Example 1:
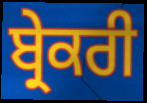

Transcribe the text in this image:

ਬ੍ਰੇਕਰੀ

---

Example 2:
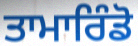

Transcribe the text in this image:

ਤਾਮਾਰਿੰਡੋ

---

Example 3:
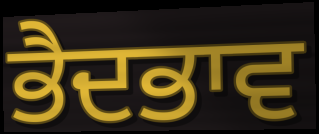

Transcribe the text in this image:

ਭੈਦਭਾਵ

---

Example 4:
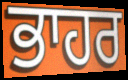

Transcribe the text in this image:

ਭਾਹਰ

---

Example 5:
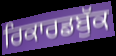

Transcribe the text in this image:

ਰਿਕਾਰਡਬੁੱਕ